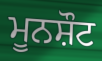
ਮੂਨਸ਼ੌਟ